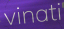
vinati